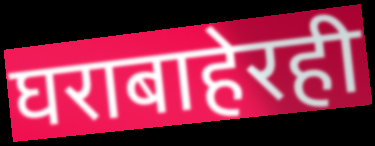
घराबाहेरही